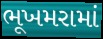
ભૂખમરામાં